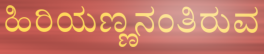
ಹಿರಿಯಣ್ಣನಂತಿರುವ